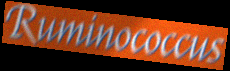
Ruminococcus